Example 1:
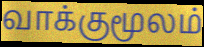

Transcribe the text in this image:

வாக்குமூலம்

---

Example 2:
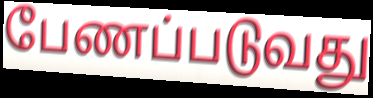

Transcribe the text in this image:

பேணப்படுவது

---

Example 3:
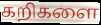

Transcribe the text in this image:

கறிகளை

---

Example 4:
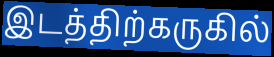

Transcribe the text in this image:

இடத்திற்கருகில்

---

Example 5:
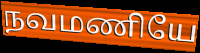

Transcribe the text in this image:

நவமணியே